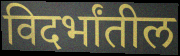
विदर्भांतील